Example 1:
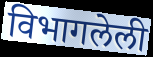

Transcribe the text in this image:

विभागलेली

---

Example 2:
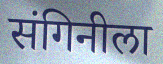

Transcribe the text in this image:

संगिनीला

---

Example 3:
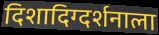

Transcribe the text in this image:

दिशादिग्दर्शनाला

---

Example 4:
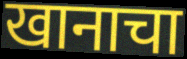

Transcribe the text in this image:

खानाचा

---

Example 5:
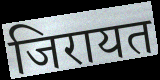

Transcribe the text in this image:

जिरायत